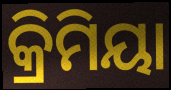
କ୍ରିମିୟା